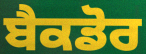
ਬੈਕਡੋਰ